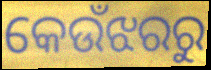
କେଉଁଝରରୁ